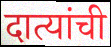
दात्यांची